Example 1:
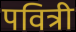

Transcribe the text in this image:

पवित्री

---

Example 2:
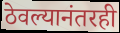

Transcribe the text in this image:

ठेवल्यानंतरही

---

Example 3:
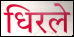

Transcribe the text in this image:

धिरले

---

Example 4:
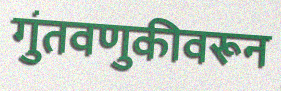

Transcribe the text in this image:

गुंतवणुकीवरून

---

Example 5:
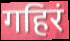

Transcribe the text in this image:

गहिरं